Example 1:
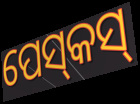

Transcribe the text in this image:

ପେସ୍‌କସ୍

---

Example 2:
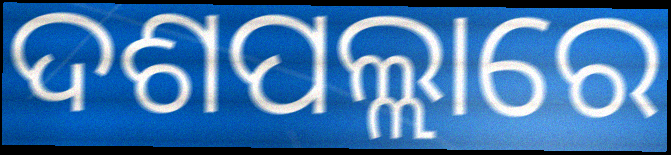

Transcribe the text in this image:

ଦଶପଲ୍ଲାରେ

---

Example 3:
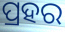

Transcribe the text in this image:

ପ୍ରହର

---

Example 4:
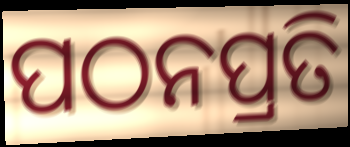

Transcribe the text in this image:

ପଠନପ୍ରତି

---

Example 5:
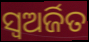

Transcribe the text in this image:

ସ୍ୱଅର୍ଜିତ